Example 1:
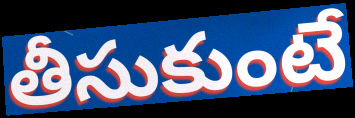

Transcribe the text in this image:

తీసుకుంటే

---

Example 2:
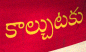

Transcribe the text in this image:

కాల్చుటకు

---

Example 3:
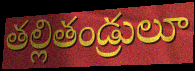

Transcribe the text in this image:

తల్లితండ్రులూ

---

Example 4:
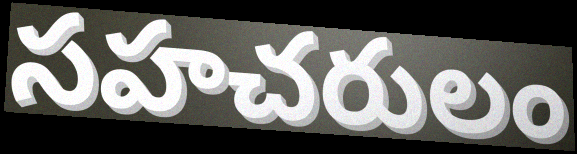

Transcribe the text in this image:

సహచరులం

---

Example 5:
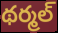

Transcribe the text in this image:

థర్మల్